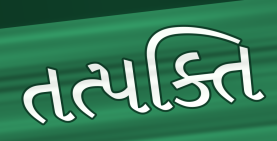
તત્પક્તિ